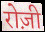
रोज़ी